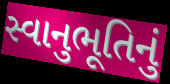
સ્વાનુભૂતિનું